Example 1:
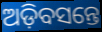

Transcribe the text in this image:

ଅଡ଼ିବସନ୍ତେ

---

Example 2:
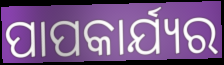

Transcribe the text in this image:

ପାପକାର୍ଯ୍ୟର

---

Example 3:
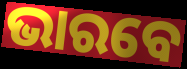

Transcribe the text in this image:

ଭାରବେ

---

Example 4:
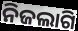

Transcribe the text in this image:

ନିଜଲାଗି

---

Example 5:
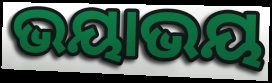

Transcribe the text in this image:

ଭୟାଭୟ